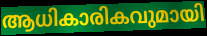
ആധികാരികവുമായി